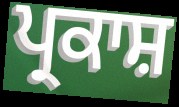
ਪ੍ਰਕਾਸ਼